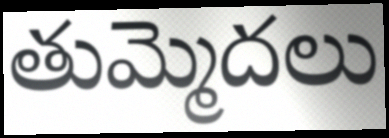
తుమ్మెదలు